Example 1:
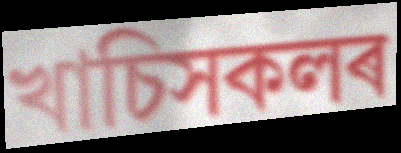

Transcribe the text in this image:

খাচিসকলৰ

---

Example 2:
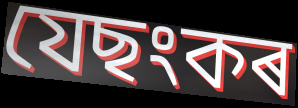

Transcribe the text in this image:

যেছংকৰ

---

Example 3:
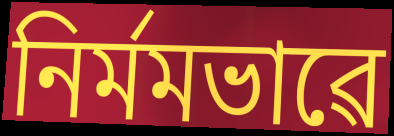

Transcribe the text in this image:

নিৰ্মমভাৱে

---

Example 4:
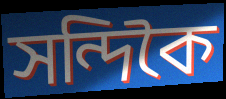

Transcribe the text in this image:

সন্দিকৈ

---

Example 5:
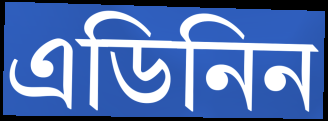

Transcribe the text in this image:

এডিনিন